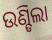
ଉଣ୍ଡିଲା